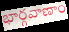
భార్గవాణాం